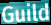
Guild